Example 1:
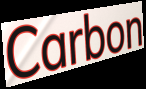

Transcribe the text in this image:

Carbon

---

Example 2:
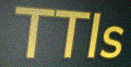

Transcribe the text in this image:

TTIs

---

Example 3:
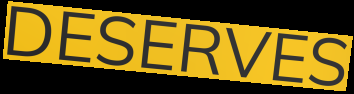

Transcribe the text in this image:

DESERVES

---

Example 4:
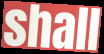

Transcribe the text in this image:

shall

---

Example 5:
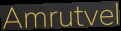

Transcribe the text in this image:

Amrutvel